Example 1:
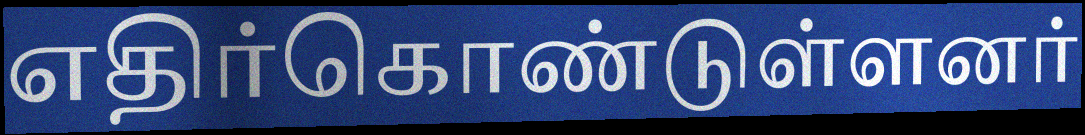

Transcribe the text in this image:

எதிர்கொண்டுள்ளனர்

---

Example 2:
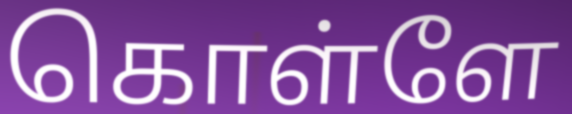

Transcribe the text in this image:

கொள்ளே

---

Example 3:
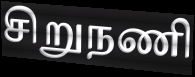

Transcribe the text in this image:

சிறுநணி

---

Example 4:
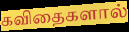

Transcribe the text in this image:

கவிதைகளால்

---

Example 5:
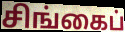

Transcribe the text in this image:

சிங்கைப்